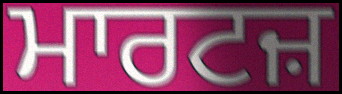
ਮਾਰਟਜ਼